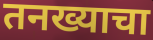
तनख्याचा